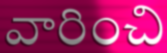
వారించి